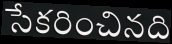
సేకరించినది